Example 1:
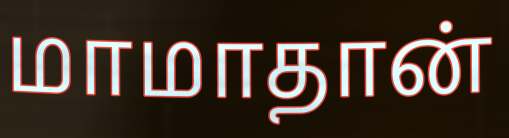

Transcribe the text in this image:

மாமாதான்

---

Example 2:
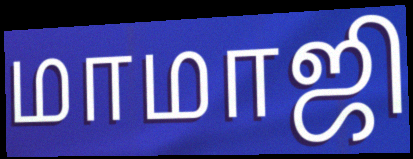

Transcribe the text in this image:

மாமாஜி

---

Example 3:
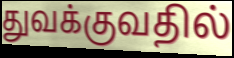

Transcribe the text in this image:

துவக்குவதில்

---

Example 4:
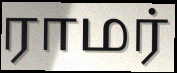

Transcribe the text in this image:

ராமர்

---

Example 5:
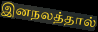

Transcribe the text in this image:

இனநலத்தால்